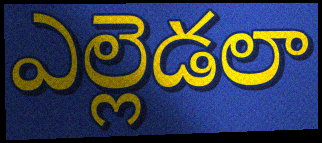
ఎల్లెడలా